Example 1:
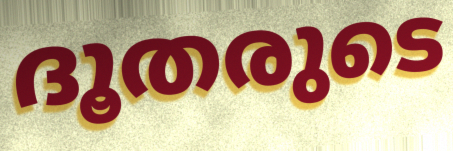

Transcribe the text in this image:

ദൂതരുടെ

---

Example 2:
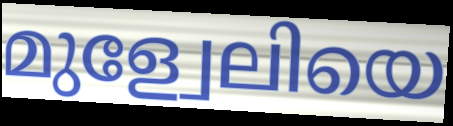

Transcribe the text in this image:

മുള്വേലിയെ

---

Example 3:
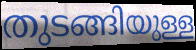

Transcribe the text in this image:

തുടങ്ങിയുള്ള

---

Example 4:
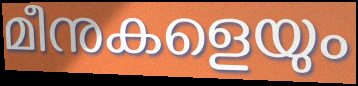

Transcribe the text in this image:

മീനുകളെയും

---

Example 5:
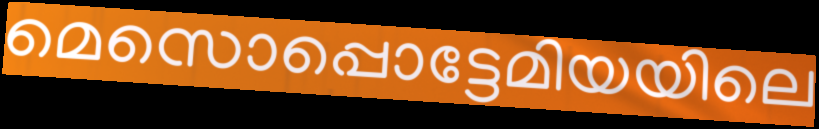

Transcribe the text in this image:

മെസൊപ്പൊട്ടേമിയയിലെ